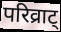
परिव्राट्